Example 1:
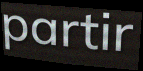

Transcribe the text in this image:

partir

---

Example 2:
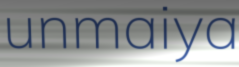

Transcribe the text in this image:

unmaiya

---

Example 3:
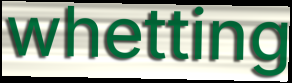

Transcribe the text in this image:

whetting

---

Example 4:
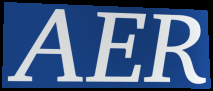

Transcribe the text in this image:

AER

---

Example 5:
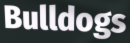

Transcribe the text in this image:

Bulldogs